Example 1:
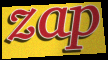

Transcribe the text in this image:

zap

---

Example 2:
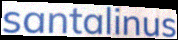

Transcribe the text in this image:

santalinus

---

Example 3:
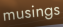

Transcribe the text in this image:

musings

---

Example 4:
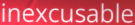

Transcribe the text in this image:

inexcusable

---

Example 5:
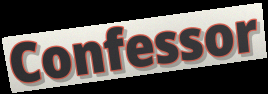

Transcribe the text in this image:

Confessor